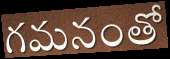
గమనంతో